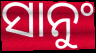
ସାନୁଂ